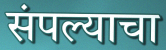
संपल्याचा